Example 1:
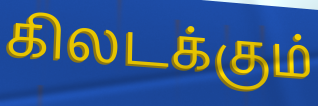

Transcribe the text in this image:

கிலடக்கும்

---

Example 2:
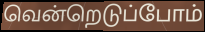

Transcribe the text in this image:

வென்றெடுப்போம்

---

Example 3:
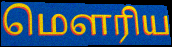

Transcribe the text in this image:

மெளரிய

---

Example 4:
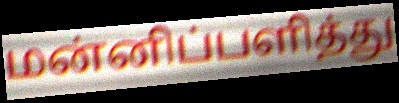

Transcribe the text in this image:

மன்னிப்பளித்து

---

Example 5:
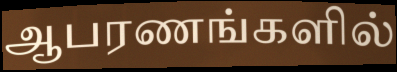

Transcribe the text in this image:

ஆபரணங்களில்